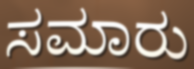
ಸಮಾರು